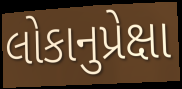
લોકાનુપ્રેક્ષા